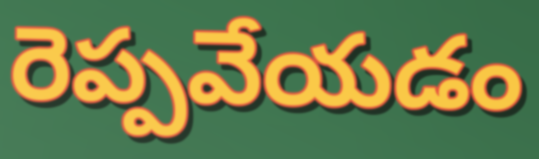
రెప్పవేయడం